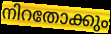
നിറതോക്കും